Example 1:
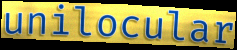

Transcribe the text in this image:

unilocular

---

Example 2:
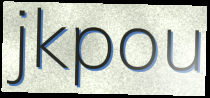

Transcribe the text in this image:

jkpou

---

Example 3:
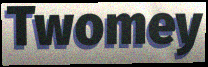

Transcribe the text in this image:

Twomey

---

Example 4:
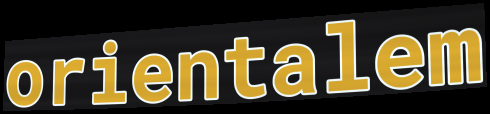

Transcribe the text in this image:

orientalem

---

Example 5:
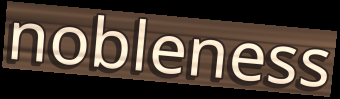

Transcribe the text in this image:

nobleness